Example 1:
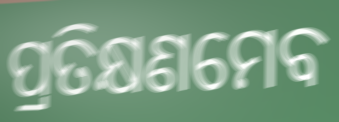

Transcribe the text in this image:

ପ୍ରତିକ୍ଷଣମେବ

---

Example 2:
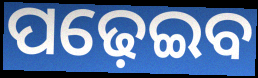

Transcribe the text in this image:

ପଢ଼େଇବ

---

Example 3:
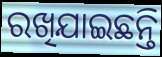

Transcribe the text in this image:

ରଖିଯାଇଛନ୍ତି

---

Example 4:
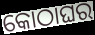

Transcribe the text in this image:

କୋଠାଘର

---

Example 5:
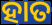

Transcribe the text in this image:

ହାତ